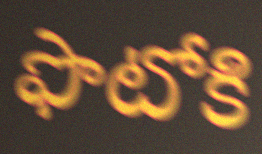
ఫొటోకి